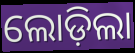
ଲୋଡ଼ିଲା